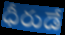
ధీరుడే